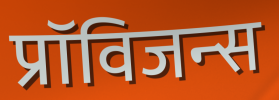
प्रॉविजन्स